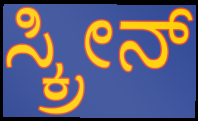
ಸ್ಕ್ರೀನ್